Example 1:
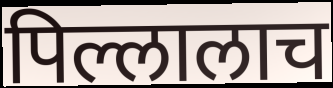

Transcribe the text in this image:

पिल्लालाच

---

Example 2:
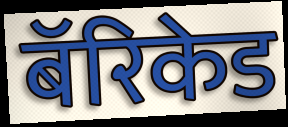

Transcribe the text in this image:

बॅरिकेड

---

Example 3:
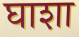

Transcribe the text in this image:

घाशा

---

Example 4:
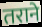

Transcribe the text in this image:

तराने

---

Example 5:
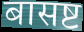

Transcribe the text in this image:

बासष्ट